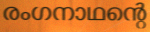
രംഗനാഥന്റെ